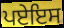
ਪਏਇਸ